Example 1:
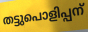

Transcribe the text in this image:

തട്ടുപൊളിപ്പന്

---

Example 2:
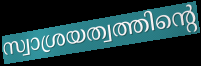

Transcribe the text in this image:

സ്വാശ്രയത്വത്തിന്റെ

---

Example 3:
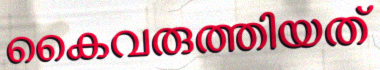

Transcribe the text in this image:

കൈവരുത്തിയത്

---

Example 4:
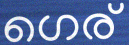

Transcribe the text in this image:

ഗെര്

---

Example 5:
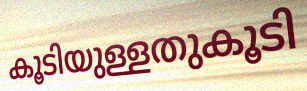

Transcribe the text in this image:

കൂടിയുള്ളതുകൂടി